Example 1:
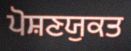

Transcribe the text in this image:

ਪੋਸ਼ਣਯੁਕਤ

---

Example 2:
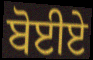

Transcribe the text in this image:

ਬੋਈਏ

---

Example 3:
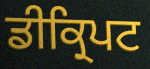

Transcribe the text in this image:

ਡੀਕ੍ਰਿਪਟ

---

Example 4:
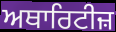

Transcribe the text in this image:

ਅਥਾਰਿਟੀਜ਼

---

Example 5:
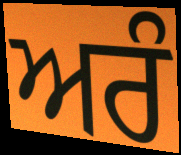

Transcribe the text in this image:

ਅਰੰ